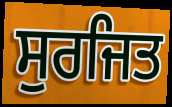
ਸੁਰਜਿਤ